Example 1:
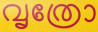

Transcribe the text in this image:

വൃത്രോ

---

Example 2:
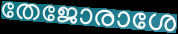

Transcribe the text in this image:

തേജോരാശേ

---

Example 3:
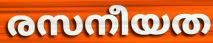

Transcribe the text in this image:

രസനീയത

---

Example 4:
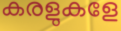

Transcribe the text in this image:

കരളുകളേ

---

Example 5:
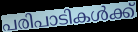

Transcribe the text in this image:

പരിപാടികൾക്ക്